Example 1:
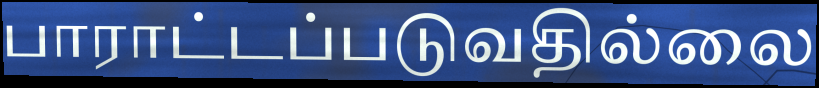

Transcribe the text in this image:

பாராட்டப்படுவதில்லை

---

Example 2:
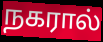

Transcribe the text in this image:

நகரால்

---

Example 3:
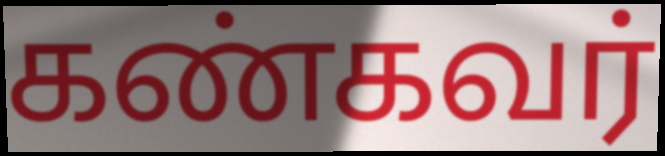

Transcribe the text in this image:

கண்கவர்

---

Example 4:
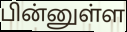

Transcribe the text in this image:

பின்னுள்ள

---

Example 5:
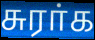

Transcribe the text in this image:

சுரர்க